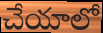
చేయాలో